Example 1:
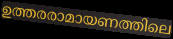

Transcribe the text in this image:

ഉത്തരരാമായണത്തിലെ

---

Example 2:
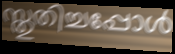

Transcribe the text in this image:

സ്തുതിച്ചപ്പോൾ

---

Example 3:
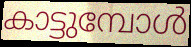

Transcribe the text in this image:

കാട്ടുമ്പോൾ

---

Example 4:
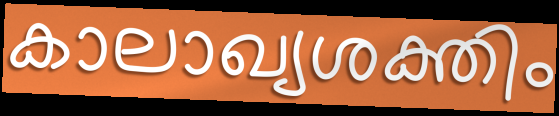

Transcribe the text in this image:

കാലാഖ്യശക്തിം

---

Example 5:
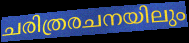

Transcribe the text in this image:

ചരിത്രരചനയിലും